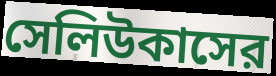
সেলিউকাসের